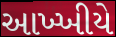
આખ્ખીયે